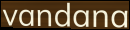
vandana